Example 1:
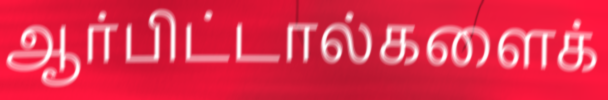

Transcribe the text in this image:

ஆர்பிட்டால்களைக்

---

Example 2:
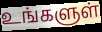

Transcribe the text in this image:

உங்களுள்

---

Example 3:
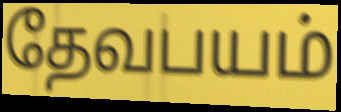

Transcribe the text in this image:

தேவபயம்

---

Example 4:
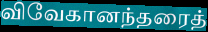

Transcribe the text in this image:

விவேகானந்தரைத்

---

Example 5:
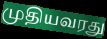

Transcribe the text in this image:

முதியவரது